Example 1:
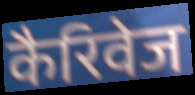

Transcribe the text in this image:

कैरिवेज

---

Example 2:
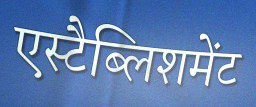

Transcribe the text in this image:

एस्टैब्लिशमेंट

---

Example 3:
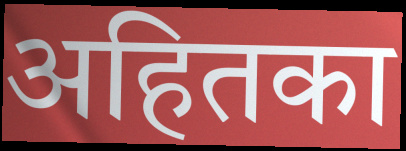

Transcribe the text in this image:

अहितका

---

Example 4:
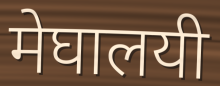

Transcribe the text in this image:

मेघालयी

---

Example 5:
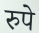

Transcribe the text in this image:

रुपे